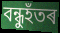
বন্ধুহঁতৰ